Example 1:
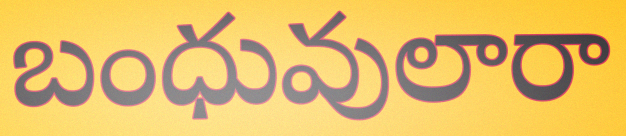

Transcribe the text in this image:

బంధువులారా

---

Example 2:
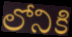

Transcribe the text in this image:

లోనికి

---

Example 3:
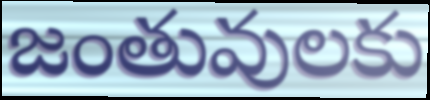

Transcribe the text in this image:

జంతువులకు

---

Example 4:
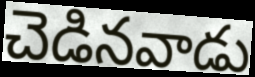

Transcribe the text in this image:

చెడినవాడు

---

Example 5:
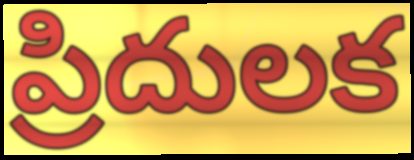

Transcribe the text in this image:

ప్రిదులక